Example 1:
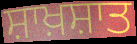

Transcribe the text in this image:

ਸ਼ਾਖ਼ਸ਼ਾਤ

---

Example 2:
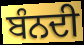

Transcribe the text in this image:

ਬੰਨਦੀ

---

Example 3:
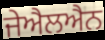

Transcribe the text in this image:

ਜੇਐਲਐਨ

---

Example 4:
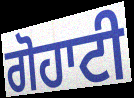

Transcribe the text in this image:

ਗੋਹਾਟੀ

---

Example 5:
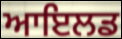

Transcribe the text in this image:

ਆਇਲਡ